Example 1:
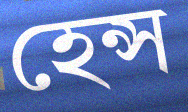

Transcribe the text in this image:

হেন্স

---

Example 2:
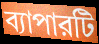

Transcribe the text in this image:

ব্যাপারটি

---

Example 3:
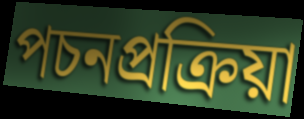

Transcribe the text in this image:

পচনপ্রক্রিয়া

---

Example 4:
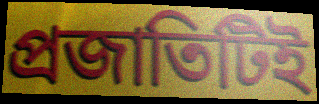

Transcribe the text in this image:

প্রজাতিটিই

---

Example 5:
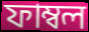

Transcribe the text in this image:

ফাম্বল